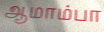
ஆமாம்பா